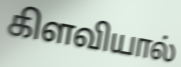
கிளவியால்